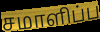
சமாளிப்ப